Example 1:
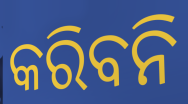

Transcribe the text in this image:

କରିବନି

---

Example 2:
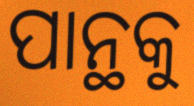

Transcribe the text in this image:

ପାନ୍ଥକୁ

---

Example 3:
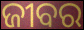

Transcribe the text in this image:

ଜୀବର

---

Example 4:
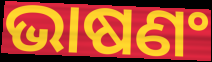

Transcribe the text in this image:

ଭାଷଣଂ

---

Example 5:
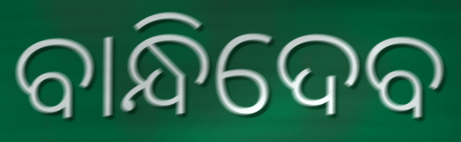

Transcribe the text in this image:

ବାନ୍ଧିଦେବ